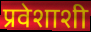
प्रवेशाशी